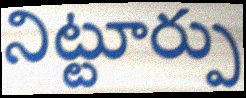
నిట్టూర్పు